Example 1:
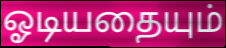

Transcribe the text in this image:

ஓடியதையும்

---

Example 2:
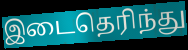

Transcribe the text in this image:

இடைதெரிந்து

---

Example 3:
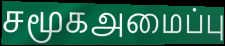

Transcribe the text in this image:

சமூகஅமைப்பு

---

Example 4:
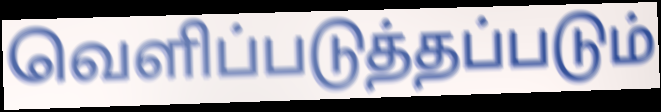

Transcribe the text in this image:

வெளிப்படுத்தப்படும்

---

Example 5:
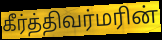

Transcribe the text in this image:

கீர்த்திவர்மரின்